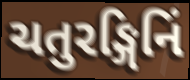
ચતુરઙ્ગિનિં